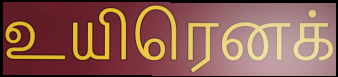
உயிரெனக்